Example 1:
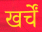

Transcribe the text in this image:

खर्चें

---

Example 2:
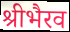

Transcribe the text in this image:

श्रीभैरव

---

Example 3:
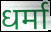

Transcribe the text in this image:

धर्मा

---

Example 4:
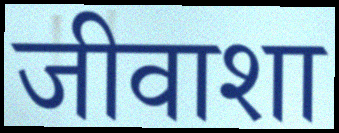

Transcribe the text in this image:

जीवाशा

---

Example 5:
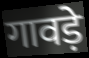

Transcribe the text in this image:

गावड़े